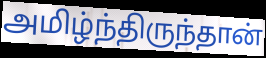
அமிழ்ந்திருந்தான்